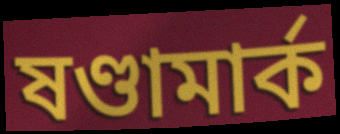
ষণ্ডামার্ক